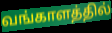
வங்காளத்தில்